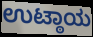
ಉಟ್ಠಾಯ